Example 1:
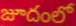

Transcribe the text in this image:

జూదంలో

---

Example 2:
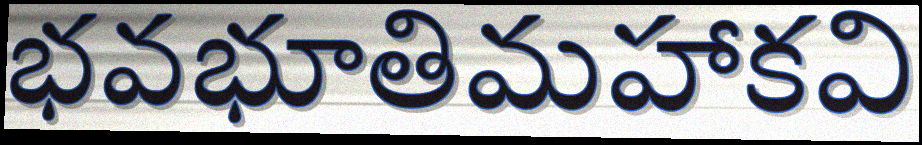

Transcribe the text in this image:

భవభూతిమహాకవి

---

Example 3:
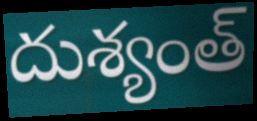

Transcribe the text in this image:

దుశ్యంత్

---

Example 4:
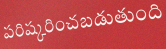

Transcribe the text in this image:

పరిష్కరించబడుతుంది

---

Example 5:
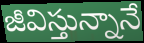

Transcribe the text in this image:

జీవిస్తున్నానే